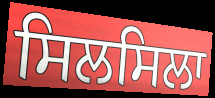
ਸਿਲਸਿਲਾ